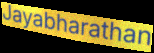
Jayabharathan